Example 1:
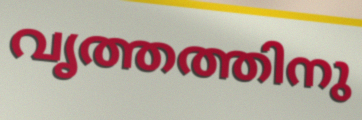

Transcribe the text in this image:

വൃത്തത്തിനു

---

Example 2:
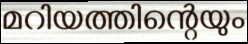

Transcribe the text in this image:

മറിയത്തിന്റെയും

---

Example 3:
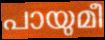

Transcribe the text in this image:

പായുമീ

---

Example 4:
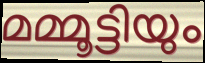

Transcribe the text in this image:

മമ്മൂട്ടിയും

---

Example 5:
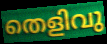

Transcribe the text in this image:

തെളിവു